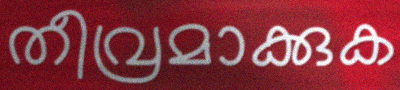
തീവ്രമാക്കുക